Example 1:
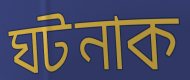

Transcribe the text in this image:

ঘটনাক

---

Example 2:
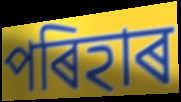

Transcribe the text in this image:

পৰিহাৰ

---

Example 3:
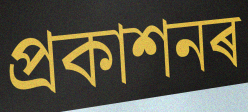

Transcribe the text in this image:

প্ৰকাশনৰ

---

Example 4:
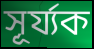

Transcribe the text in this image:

সূৰ্য্যক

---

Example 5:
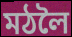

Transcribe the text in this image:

মঠলৈ